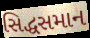
સિદ્ધસમાન